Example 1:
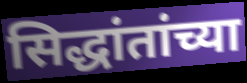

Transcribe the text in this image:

सिद्धांतांच्या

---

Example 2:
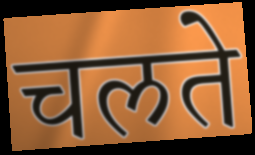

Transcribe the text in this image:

चलते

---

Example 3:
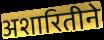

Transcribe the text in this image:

अशारितीने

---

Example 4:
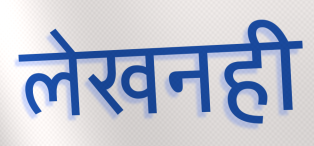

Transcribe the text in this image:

लेखनही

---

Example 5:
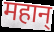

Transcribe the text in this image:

महान्